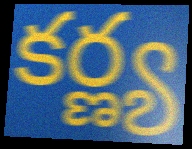
కర్ణ్య